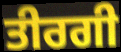
ਤੀਰਗੀ